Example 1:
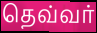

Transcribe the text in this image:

தெவ்வர்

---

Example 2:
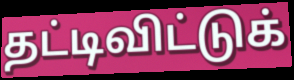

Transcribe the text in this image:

தட்டிவிட்டுக்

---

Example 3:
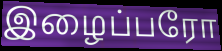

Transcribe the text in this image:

இழைப்பரோ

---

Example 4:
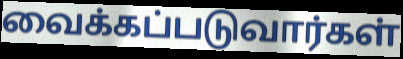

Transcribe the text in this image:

வைக்கப்படுவார்கள்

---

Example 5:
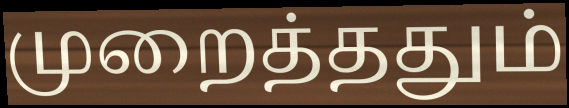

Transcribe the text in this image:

முறைத்ததும்